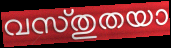
വസ്തുതയാ